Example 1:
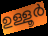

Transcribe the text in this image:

ഉള്ളൂർ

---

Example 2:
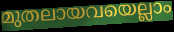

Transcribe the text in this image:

മുതലായവയെല്ലാം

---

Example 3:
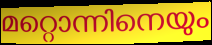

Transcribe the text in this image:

മറ്റൊന്നിനെയും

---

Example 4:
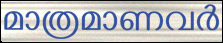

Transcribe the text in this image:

മാത്രമാണവർ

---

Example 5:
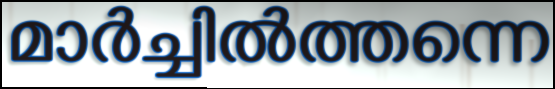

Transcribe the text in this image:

മാർച്ചിൽത്തന്നെ